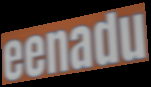
eenadu